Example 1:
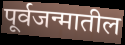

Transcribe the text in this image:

पूर्वजन्मातील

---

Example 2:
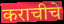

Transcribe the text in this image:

कराचीचे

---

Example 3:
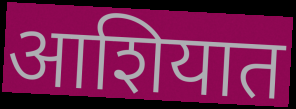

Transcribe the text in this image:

आशियात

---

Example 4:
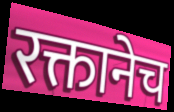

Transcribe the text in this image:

रक्तानेच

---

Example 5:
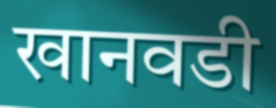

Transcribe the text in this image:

खानवडी